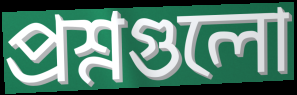
প্রশ্নগুলো